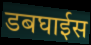
डबघाईस